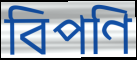
বিপণি